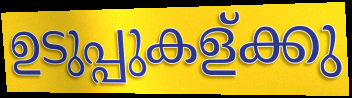
ഉടുപ്പുകള്ക്കു